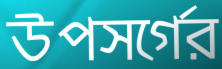
উপসর্গের